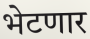
भेटणार